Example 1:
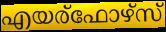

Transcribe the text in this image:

എയര്ഫോഴ്സ്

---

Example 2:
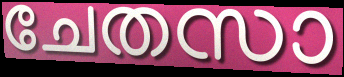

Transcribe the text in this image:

ചേതസാ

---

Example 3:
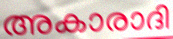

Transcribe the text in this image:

അകാരാദി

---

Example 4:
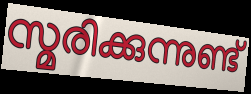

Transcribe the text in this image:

സ്മരിക്കുന്നുണ്ട്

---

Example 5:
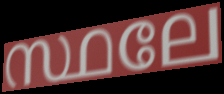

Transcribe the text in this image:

സ്ഥലേ